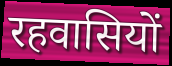
रहवासियों